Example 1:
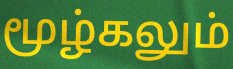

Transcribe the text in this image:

மூழ்கலும்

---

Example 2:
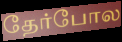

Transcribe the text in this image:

தேர்போல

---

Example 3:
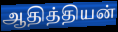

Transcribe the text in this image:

ஆதித்தியன்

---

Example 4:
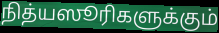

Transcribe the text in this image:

நித்யஸூரிகளுக்கும்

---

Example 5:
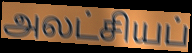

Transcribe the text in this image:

அலட்சியப்